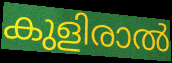
കുളിരാൽ